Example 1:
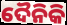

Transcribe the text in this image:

ଦୈନିକି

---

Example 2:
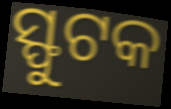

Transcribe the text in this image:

ସ୍ଫୁଟକ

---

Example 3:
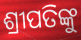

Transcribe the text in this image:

ଶ୍ରୀପତିଙ୍କୁ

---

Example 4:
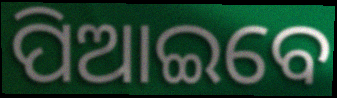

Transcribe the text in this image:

ପିଆଇବେ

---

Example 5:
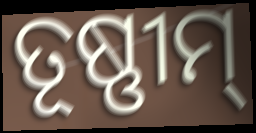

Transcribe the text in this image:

ତୂଷ୍ଣୀମ୍